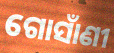
ଗୋସାଁଣୀ